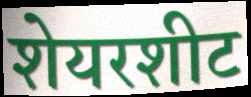
शेयरशीट